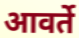
आवर्ते